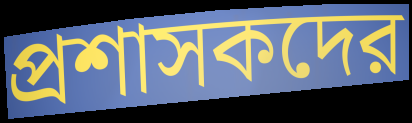
প্রশাসকদের